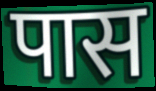
पास